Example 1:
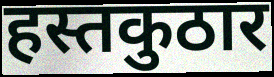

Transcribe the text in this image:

हस्तकुठार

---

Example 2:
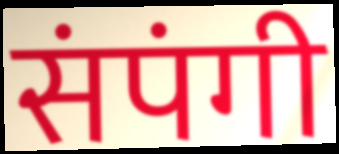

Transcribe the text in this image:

संपंगी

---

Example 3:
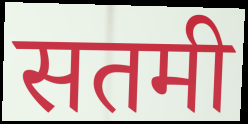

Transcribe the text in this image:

सतमी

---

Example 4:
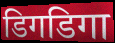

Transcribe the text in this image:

डिगडिगा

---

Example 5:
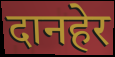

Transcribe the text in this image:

दानहेर